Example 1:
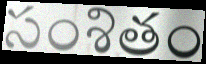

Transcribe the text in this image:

సంశితం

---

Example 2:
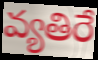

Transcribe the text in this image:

వ్యతిరే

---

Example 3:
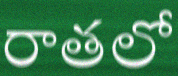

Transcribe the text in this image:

రాతలో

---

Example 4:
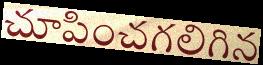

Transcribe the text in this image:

చూపించగలిగిన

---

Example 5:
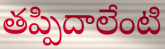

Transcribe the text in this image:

తప్పిదాలేంటి